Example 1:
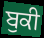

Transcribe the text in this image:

ਬੁਕੀ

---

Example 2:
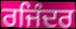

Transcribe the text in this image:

ਰਜਿੰਦਰ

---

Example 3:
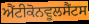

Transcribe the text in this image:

ਐਂਟੀਕੋਨਵੂਲਸੈਂਟਸ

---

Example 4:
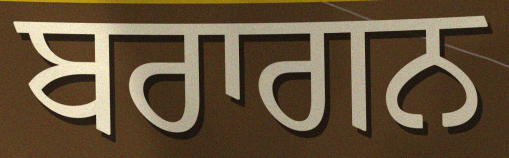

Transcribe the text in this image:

ਬਰਾਗਨ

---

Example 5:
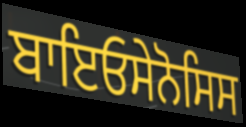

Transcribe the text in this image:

ਬਾਇਓਸੇਨੋਸਿਸ